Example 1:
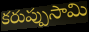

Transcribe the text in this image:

కరుప్పుసామి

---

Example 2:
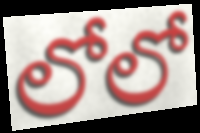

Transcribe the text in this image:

లోలో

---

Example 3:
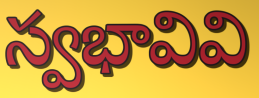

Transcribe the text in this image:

స్వభావివి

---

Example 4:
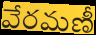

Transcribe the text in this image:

వేరమణీ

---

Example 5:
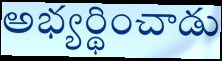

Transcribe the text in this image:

అభ్యర్థించాడు